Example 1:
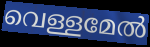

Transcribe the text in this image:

വെള്ളമേൽ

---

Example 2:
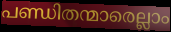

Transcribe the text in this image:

പണ്ഡിതന്മാരെല്ലാം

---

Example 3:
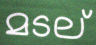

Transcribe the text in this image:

മടല്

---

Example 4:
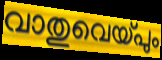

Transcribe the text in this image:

വാതുവെയ്പും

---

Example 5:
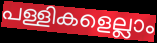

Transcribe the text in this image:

പള്ളികളെല്ലാം